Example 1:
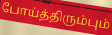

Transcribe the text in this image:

போய்த்திரும்பும்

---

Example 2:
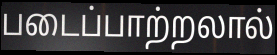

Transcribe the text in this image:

படைப்பாற்றலால்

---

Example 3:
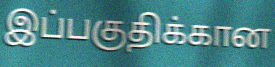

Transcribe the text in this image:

இப்பகுதிக்கான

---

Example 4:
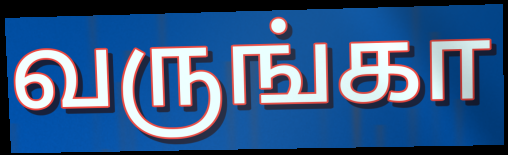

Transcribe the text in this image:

வருங்கா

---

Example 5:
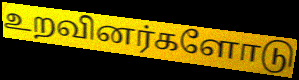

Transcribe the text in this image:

உறவினர்களோடு